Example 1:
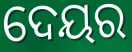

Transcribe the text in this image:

ଦେୟର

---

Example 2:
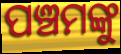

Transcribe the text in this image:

ପଞ୍ଚମଙ୍କୁ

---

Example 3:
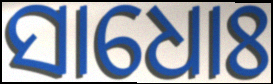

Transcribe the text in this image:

ସାଧୋଃ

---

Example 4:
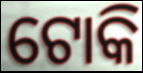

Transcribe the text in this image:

ଟୋକି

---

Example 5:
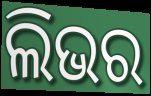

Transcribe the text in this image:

ଲିଭର